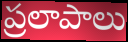
ప్రలాపాలు